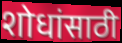
शोधांसाठी